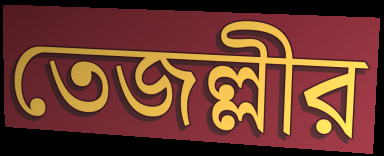
তেজল্লীর